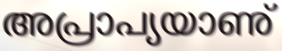
അപ്രാപ്യയാണു്